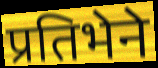
प्रतिभेने